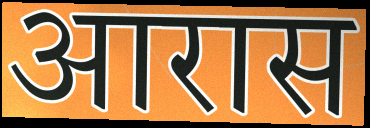
आरास